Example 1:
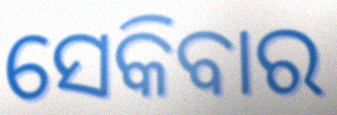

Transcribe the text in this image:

ସେକିବାର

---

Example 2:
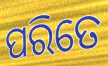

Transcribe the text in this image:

ପରିତେ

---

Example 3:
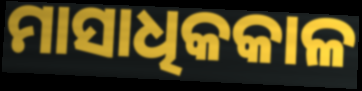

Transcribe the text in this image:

ମାସାଧିକକାଳ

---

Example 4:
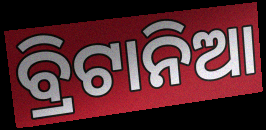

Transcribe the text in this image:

ବ୍ରିଟାନିଆ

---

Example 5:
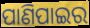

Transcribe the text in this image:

ପାଣିପାଇର